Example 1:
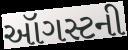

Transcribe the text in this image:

ઑગસ્ટની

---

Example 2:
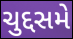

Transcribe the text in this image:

ચુદ્દસમે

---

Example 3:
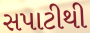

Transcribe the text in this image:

સપાટીથી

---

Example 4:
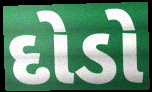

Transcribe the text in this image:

દોડો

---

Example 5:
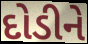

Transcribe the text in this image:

દોડીને